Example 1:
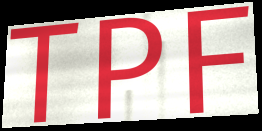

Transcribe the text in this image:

TPF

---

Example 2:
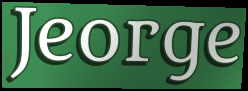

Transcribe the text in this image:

Jeorge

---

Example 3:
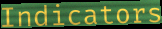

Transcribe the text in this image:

Indicators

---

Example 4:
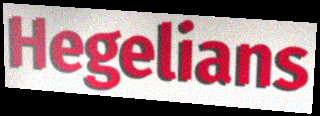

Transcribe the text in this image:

Hegelians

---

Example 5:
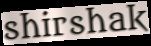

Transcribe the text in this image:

shirshak